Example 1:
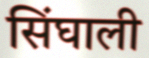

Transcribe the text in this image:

सिंघाली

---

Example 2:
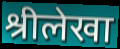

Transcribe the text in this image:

श्रीलेखा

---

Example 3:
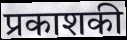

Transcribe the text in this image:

प्रकाशकी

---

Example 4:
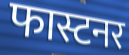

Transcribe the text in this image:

फास्टनर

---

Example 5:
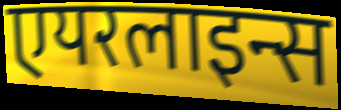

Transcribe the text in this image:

एयरलाइन्स